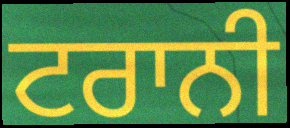
ਟਰਾਨੀ